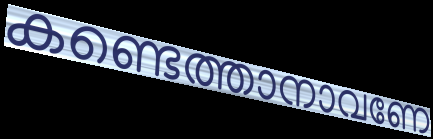
കണ്ടെത്താനാവണേ